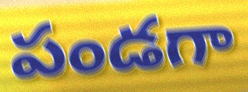
పండగా